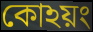
কোঽয়ং